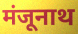
मंजूनाथ